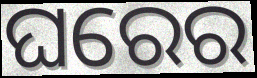
ଘରେର